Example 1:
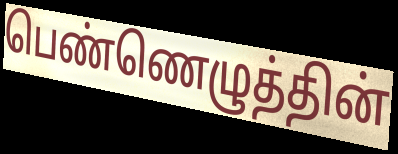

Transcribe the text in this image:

பெண்ணெழுத்தின்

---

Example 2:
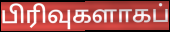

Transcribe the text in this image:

பிரிவுகளாகப்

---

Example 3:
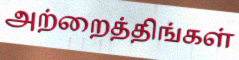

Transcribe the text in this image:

அற்றைத்திங்கள்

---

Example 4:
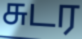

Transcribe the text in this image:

சுடர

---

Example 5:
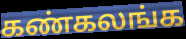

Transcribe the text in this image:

கண்கலங்க